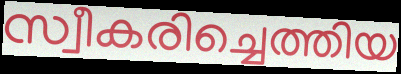
സ്വീകരിച്ചെത്തിയ